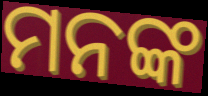
ମନଙ୍କ